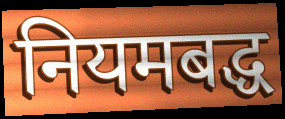
नियमबद्ध